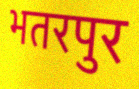
भतरपुर